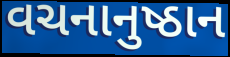
વચનાનુષ્ઠાન